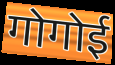
गोगोई